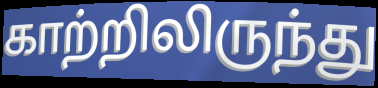
காற்றிலிருந்து